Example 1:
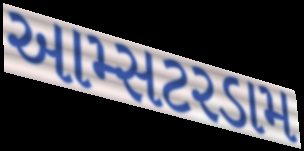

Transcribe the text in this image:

આમ્સટરડામ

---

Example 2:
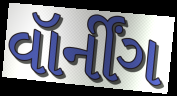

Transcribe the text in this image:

વૉર્નીંગ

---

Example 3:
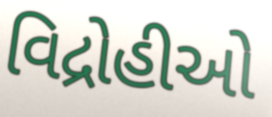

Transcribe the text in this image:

વિદ્રોહીઓ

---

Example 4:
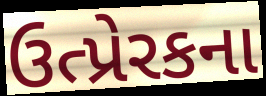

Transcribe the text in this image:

ઉત્પ્રેરકના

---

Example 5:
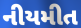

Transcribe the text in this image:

નીયમીત